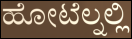
ಹೋಟೆಲ್ನಲ್ಲಿ